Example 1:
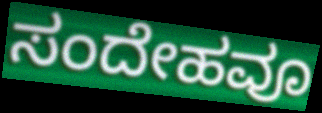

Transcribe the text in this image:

ಸಂದೇಹವೂ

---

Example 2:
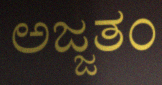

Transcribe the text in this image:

ಅಜ್ಜತಂ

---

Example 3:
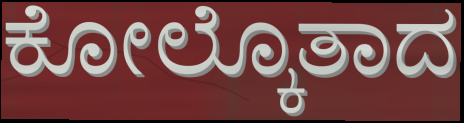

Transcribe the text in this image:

ಕೋಲ್ಕೊತಾದ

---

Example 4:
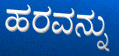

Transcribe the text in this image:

ಹರವನ್ನು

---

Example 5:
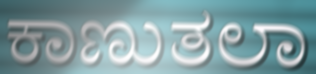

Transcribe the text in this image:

ಕಾಣುತಲಾ